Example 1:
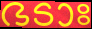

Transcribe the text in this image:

ഭടാഃ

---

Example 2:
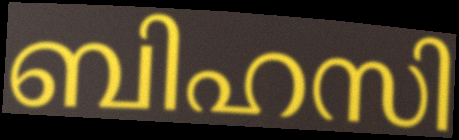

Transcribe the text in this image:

ബിഹസി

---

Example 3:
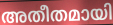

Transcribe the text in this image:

അതീതമായി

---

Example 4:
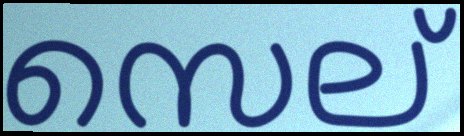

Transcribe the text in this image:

സെല്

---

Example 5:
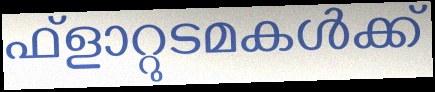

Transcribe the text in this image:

ഫ്ളാറ്റുടമകൾക്ക്